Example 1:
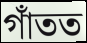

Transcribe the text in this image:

গাঁতত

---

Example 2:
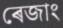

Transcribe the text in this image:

ৰেজাং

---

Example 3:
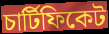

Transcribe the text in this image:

চাৰ্টিফিকেট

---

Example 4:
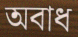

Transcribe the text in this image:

অবাধ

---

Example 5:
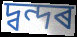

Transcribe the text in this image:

দ্বন্দৰ